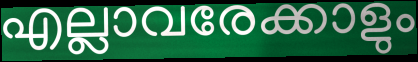
എല്ലാവരേക്കാളും